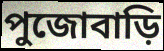
পুজোবাড়ি